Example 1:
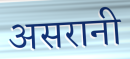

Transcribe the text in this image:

असरानी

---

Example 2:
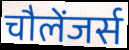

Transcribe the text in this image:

चौलेंजर्स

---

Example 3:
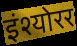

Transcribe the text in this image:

इंश्योरर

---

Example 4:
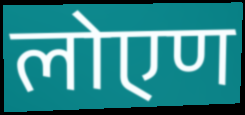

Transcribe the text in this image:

लोएण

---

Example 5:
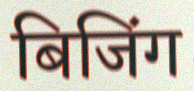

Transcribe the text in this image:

बिजिंग